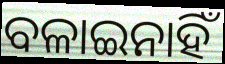
ବଳାଇନାହିଁ